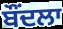
ਬੌਂਦਲਾ